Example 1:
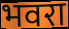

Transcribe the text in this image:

भवरा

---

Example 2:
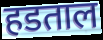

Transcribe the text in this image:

हडताल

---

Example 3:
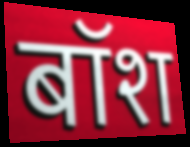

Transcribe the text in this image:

बॉश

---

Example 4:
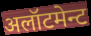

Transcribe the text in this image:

अलॉटमेन्ट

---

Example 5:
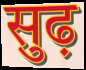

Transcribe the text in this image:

सुढ़